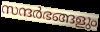
സന്ദർഭങ്ങളും